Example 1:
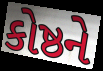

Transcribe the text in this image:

કોષ્ઠને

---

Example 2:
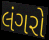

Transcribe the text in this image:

લંગરો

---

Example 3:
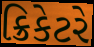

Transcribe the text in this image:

ક્રિકેટરે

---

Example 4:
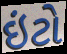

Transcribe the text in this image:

ઇંટો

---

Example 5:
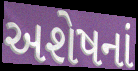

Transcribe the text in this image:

અશેષનાં